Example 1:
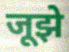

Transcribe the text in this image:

जूझे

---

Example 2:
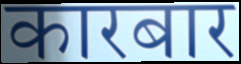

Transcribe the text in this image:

कारबार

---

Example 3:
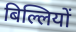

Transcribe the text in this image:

बिल्लियों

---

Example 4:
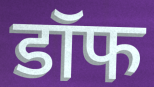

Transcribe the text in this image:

डॉफ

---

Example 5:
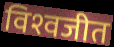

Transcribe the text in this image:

विश्वजीत